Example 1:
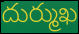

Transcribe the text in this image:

దుర్ముఖ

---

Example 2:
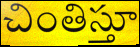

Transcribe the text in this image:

చింతిస్తూ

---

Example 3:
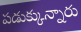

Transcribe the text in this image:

పడుక్కున్నారు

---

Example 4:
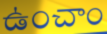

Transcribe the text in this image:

ఉంచాం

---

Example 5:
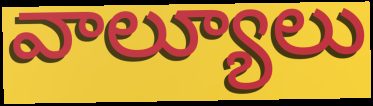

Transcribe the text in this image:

వాల్యూలు